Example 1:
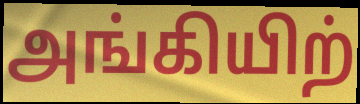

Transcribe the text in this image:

அங்கியிற்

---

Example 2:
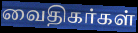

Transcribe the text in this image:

வைதிகர்கள்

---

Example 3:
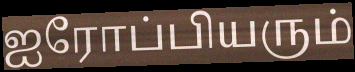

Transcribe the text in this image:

ஐரோப்பியரும்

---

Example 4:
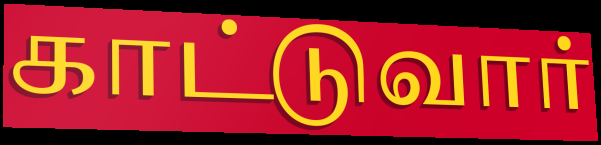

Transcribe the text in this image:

காட்டுவார்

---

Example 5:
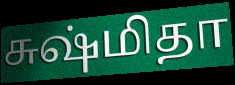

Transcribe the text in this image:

சுஷ்மிதா